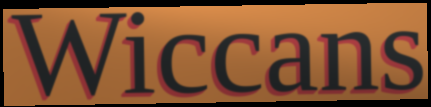
Wiccans